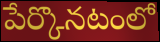
పేర్కొనటంలో